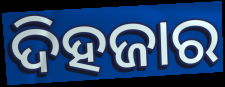
ଦିହଜାର